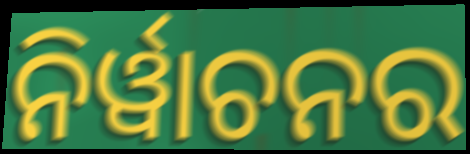
ନିର୍ୱାଚନର